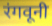
रंगवूनी